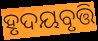
ହୃଦୟବୃତ୍ତି